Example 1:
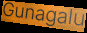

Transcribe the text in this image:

Gunagalu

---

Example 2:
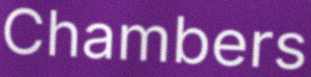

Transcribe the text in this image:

Chambers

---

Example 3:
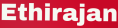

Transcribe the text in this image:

Ethirajan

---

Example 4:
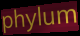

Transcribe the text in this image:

phylum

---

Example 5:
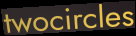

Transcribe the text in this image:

twocircles